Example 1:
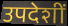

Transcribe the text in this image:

उपदेशीं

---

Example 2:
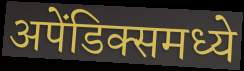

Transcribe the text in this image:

अपेंडिक्समध्ये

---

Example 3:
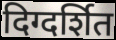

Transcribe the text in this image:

दिग्दर्शित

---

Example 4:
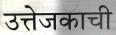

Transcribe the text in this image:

उत्तेजकाची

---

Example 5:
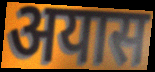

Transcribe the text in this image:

अयास